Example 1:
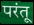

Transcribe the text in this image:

परंतू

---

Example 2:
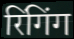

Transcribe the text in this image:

रिंगिंग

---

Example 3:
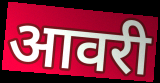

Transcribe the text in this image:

आवरी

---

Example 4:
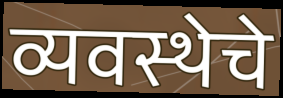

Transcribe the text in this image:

व्यवस्थेचे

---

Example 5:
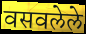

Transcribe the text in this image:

वसवलेले